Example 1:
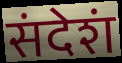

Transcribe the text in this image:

संदेशं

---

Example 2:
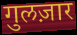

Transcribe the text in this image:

गुलज़ार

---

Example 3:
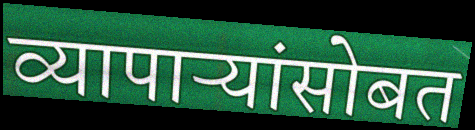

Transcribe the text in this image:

व्यापाऱ्यांसोबत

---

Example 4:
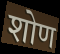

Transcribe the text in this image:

शोण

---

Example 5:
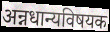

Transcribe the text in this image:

अन्नधान्यविषयक